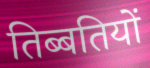
तिब्बतियों